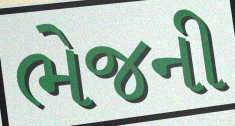
ભેજની